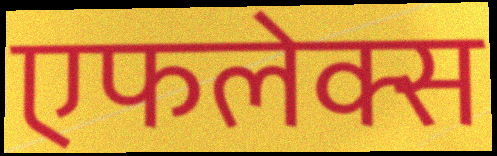
एफलेक्स